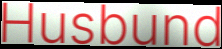
Husbund